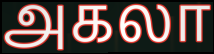
அகலா